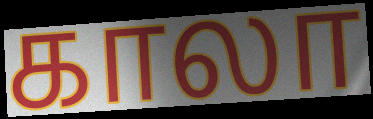
காலா